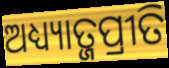
ଅଧ୍ୟ୍ୟାତ୍ଜପ୍ରୀତି